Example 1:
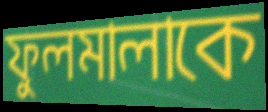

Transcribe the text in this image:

ফুলমালাকে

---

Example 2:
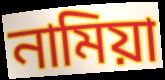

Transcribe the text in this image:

নামিয়া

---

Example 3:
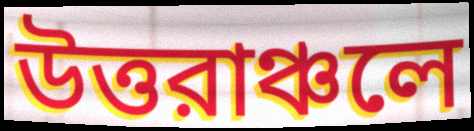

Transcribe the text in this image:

উত্তরাঞ্চলে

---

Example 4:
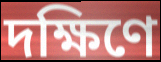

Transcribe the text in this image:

দক্ষিণে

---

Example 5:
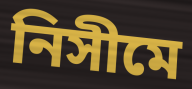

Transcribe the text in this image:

নিসীমে